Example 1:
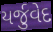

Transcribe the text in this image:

યર્જુવેદ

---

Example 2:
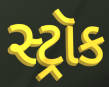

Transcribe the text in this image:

સ્ટ્રૉક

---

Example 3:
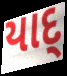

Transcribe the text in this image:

યાદ્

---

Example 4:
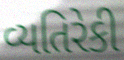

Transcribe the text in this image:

વ્યતિરેકી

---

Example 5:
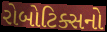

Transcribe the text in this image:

રોબોટિક્સનો